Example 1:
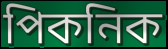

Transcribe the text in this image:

পিকনিক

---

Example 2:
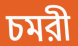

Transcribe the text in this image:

চমরী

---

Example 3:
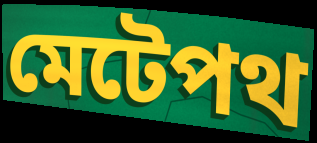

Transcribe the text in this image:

মেটেপথ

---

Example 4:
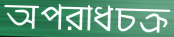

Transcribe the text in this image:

অপরাধচক্র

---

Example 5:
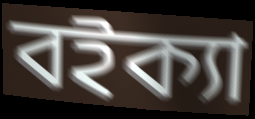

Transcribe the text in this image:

বইক্যা